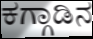
ಕಗ್ಗಾಡಿನ